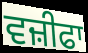
ਵਜ਼ੀਫਾ